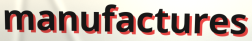
manufactures